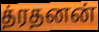
த்ரதனன்